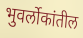
भुवर्लोकांतील